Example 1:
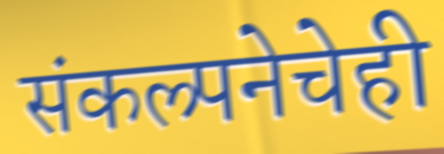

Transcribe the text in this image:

संकल्पनेचेही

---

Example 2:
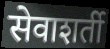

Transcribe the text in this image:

सेवाशर्ती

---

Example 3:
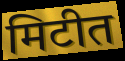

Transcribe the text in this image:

मिटीत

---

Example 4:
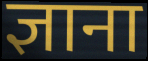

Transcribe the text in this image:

ज्ञाना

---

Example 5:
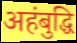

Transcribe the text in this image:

अहंबुद्धि